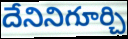
దేనినిగూర్చి